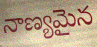
నాణ్యమైన